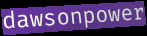
dawsonpower